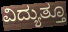
ವಿದ್ಯುತ್ತೂ